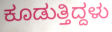
ಕೂಡುತ್ತಿದ್ದಳು